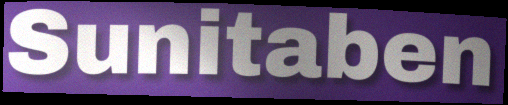
Sunitaben